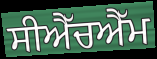
ਸੀਐੱਚਐੱਮ